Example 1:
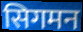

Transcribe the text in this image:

सिगमन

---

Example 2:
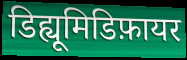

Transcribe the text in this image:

डिह्यूमिडिफ़ायर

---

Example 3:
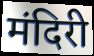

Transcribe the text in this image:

मंदिरी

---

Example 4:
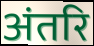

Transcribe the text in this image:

अंतरि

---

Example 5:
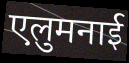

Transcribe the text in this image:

एलुमनाई